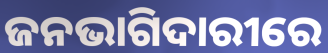
ଜନଭାଗିଦାରୀରେ